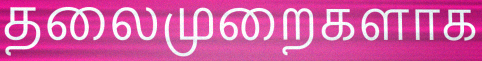
தலைமுறைகளாக